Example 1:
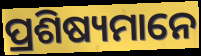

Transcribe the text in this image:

ପ୍ରଶିଷ୍ୟମାନେ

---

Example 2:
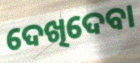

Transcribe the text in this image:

ଦେଖିଦେବା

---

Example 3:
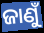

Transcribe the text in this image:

ଜାଣୁଁ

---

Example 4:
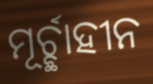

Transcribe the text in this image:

ମୂର୍ଚ୍ଛାହୀନ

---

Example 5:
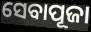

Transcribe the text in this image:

ସେବାପୂଜା